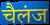
चैलंज